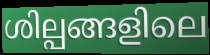
ശില്പങ്ങളിലെ